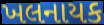
ખલનાયક